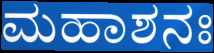
ಮಹಾಶನಃ